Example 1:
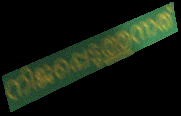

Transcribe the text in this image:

നിജപ്പെടുത്തുന്നത്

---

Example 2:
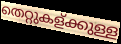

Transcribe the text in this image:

തെറ്റുകള്ക്കുള്ള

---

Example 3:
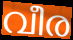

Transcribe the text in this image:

വീര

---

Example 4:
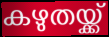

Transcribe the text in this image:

കഴുതയ്ക്ക്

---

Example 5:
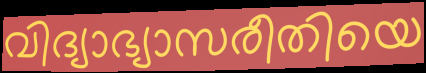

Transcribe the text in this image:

വിദ്യാഭ്യാസരീതിയെ